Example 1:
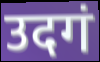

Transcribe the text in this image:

उदगं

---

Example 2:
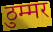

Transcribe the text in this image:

ठुम्मर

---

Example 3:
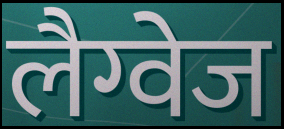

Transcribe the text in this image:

लैग्वेज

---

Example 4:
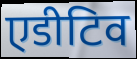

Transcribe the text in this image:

एडीटिव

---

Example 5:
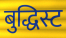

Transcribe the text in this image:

बुद्धिस्ट